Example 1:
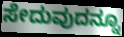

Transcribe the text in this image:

ಸೇದುವುದನ್ನೂ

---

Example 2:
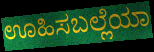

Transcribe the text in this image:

ಊಹಿಸಬಲ್ಲೆಯಾ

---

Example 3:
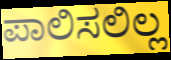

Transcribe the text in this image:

ಪಾಲಿಸಲಿಲ್ಲ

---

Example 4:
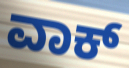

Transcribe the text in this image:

ವಾಕ್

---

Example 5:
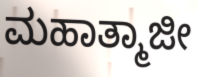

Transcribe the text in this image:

ಮಹಾತ್ಮಾಜೀ